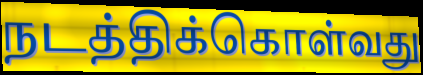
நடத்திக்கொள்வது